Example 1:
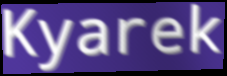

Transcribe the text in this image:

Kyarek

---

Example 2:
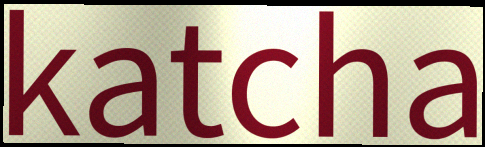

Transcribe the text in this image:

katcha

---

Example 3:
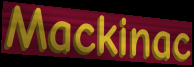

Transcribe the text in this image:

Mackinac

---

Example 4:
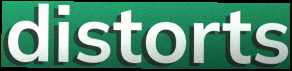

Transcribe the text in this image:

distorts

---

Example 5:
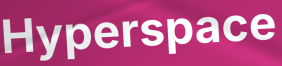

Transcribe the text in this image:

Hyperspace